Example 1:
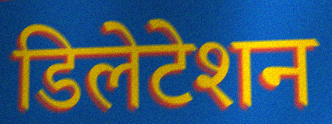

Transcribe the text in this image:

डिलेटेशन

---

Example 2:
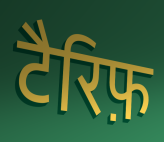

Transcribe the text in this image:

टैरिफ़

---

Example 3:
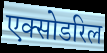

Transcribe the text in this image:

एक्सोडरिल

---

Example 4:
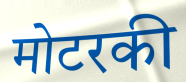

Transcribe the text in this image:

मोटरकी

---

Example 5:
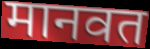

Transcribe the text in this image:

मानवत